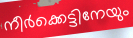
നീർക്കെട്ടിനേയും